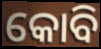
କୋବି